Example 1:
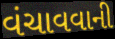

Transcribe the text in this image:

વંચાવવાની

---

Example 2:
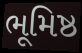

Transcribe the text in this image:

ભૂમિષ્ઠ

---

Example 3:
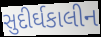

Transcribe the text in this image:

સુદીર્ઘકાલીન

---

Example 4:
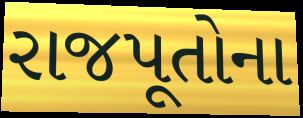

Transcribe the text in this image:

રાજપૂતોના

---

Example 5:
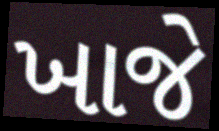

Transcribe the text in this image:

ખાજે